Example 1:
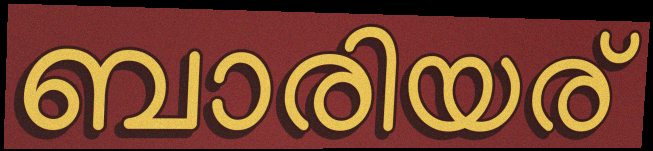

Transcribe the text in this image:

ബാരിയര്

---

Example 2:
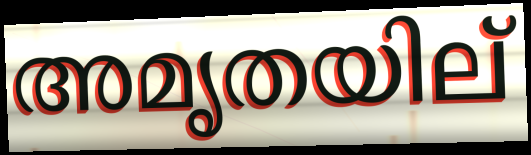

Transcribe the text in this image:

അമൃതയില്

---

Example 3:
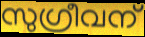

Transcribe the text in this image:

സുഗ്രീവന്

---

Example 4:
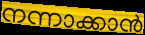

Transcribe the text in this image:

നന്നാക്കാൻ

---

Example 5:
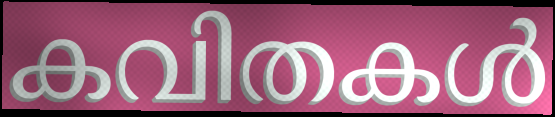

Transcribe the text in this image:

കവിതകൾ